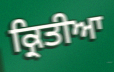
ਕ੍ਰਿਤੀਆ